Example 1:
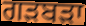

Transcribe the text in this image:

ਗੜਬੜਾ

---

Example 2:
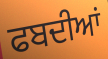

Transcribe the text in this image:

ਫਬਦੀਆਂ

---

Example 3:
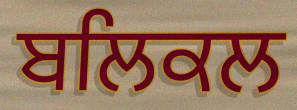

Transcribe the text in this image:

ਬਲਿਕਲ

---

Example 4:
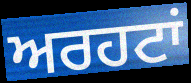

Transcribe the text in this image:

ਅਰਹਟਾਂ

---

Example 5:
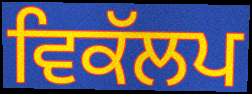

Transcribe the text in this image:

ਵਿਕੱਲਪ